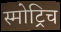
स्मोट्रिच